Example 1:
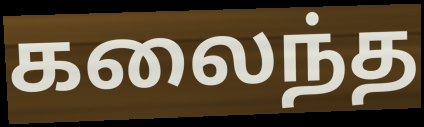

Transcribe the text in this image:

கலைந்த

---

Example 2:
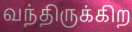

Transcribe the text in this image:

வந்திருக்கிற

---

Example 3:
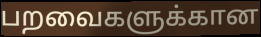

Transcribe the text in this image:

பறவைகளுக்கான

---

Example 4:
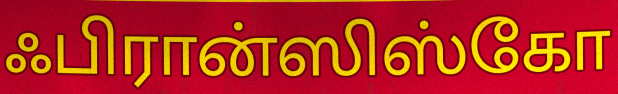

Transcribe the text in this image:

ஃபிரான்ஸிஸ்கோ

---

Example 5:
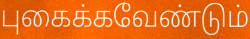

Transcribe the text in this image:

புகைக்கவேண்டும்